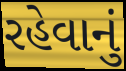
રહેવાનું